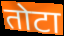
तोटा